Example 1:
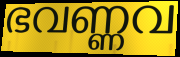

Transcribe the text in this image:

ഭവണ്ണവ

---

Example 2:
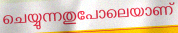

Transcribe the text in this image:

ചെയ്യുന്നതുപോലെയാണ്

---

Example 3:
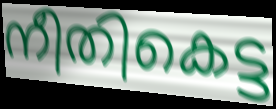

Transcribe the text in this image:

നീതികെട്ട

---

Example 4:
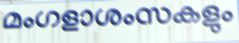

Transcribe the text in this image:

മംഗളാശംസകളും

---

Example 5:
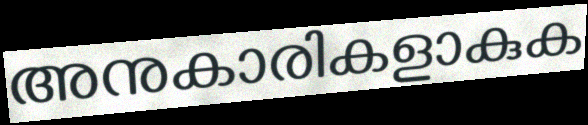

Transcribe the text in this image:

അനുകാരികളാകുക